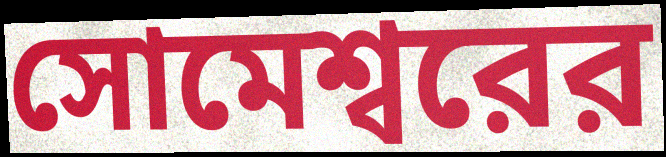
সোমেশ্বরের